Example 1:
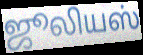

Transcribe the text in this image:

ஜூலியஸ்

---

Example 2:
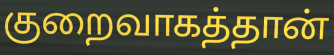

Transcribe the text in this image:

குறைவாகத்தான்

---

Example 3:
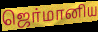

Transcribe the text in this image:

ஜெர்மானிய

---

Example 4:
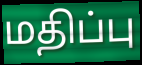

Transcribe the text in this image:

மதிப்பு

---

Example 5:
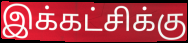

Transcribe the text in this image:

இக்கட்சிக்கு